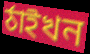
ঠাইখন